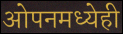
ओपनमध्येही